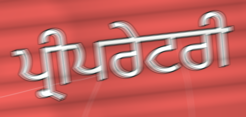
ਪ੍ਰੀਪਰੇਟਰੀ